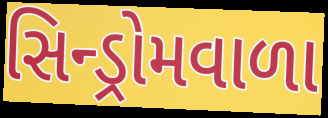
સિન્ડ્રોમવાળા